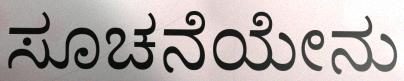
ಸೂಚನೆಯೇನು